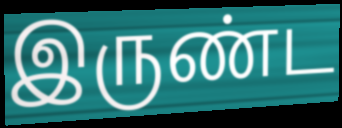
இருண்ட